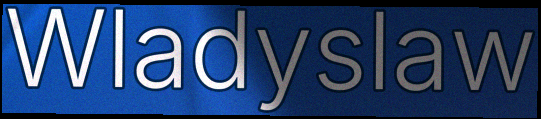
Wladyslaw